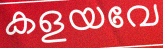
കളയവേ